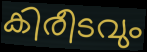
കിരീടവും